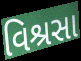
વિશ્રસા